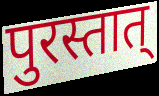
पुरस्तात्